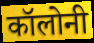
कॉलोनी